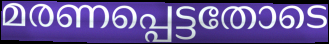
മരണപ്പെട്ടതോടെ